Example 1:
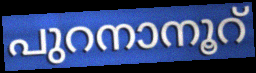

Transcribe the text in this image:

പുറനാനൂറ്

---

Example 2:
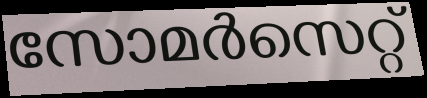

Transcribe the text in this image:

സോമർസെറ്റ്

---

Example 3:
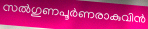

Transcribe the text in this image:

സൽഗുണപൂർണരാകുവിൻ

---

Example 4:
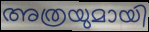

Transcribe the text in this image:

അത്രയുമായി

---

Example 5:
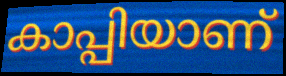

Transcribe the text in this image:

കാപ്പിയാണ്